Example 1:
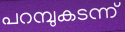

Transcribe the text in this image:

പറമ്പുകടന്ന്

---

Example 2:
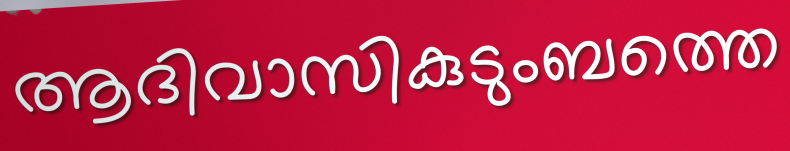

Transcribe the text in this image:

ആദിവാസികുടുംബത്തെ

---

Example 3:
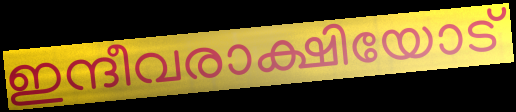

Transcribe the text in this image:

ഇന്ദീവരാക്ഷിയോട്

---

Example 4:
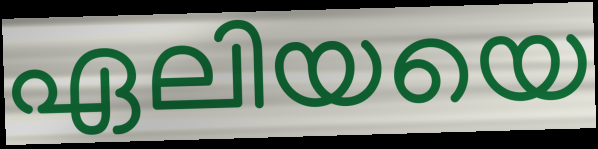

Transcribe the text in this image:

ഏലിയയെ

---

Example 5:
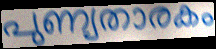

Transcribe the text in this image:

പുണ്യതാരകം